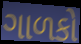
ગાળકો